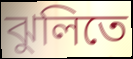
ঝুলিতে